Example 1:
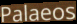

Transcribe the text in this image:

Palaeos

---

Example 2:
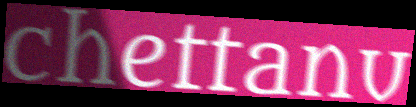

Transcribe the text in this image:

chettanu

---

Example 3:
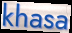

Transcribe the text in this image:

khasa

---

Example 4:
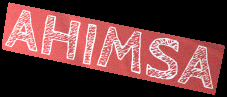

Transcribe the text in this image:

AHIMSA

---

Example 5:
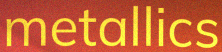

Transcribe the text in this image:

metallics